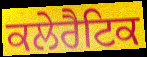
ਕਲੇਰੈਟਿਕ